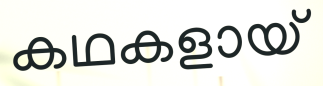
കഥകളായ്